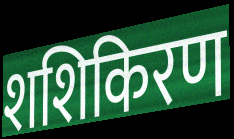
शशिकिरण